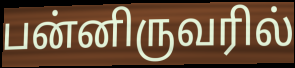
பன்னிருவரில்